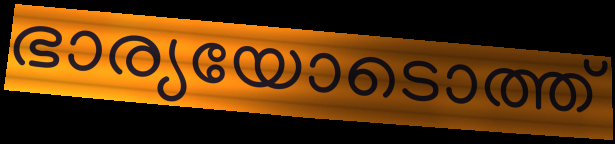
ഭാര്യയോടൊത്ത്